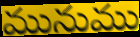
మునుము